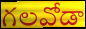
గలవోడా